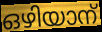
ഒഴിയാന്